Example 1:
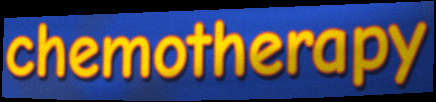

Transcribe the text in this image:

chemotherapy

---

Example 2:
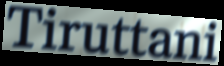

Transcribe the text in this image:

Tiruttani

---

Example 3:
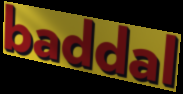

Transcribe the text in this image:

baddal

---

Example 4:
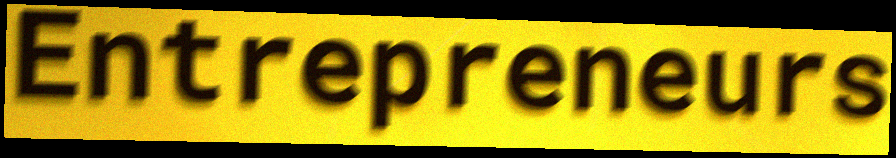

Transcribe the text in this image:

Entrepreneurs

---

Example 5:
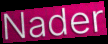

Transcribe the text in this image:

Nader